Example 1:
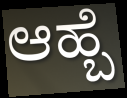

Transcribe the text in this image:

ಆಹ್ಬೆ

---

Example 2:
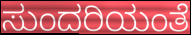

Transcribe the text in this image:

ಸುಂದರಿಯಂತೆ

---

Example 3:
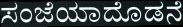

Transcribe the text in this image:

ಸಂಜೆಯಾದೊಡನೆ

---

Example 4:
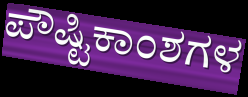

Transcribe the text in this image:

ಪೌಷ್ಟಿಕಾಂಶಗಳ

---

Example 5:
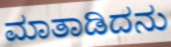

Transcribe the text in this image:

ಮಾತಾಡಿದನು